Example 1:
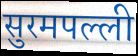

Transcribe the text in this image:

सुरमपल्ली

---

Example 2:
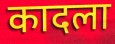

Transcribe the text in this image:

कादला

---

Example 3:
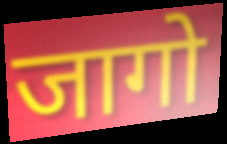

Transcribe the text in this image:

जागो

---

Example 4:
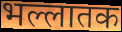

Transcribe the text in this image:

भल्लातक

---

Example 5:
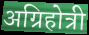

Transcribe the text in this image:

अग्रिहोत्री